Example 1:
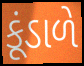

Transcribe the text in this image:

કૂંડાળે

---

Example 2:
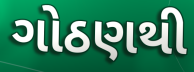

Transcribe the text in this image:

ગોઠણથી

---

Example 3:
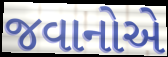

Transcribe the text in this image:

જવાનોએ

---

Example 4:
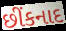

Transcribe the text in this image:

છીંકનાદ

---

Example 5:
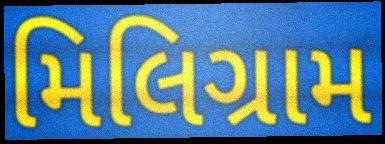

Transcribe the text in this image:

મિલિગ્રામ